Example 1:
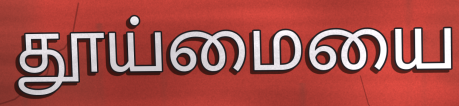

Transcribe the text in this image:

தூய்மையை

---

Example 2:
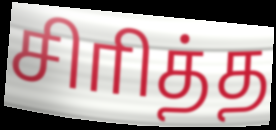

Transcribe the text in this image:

சிரித்த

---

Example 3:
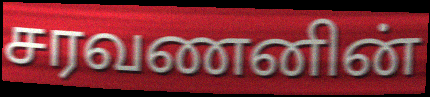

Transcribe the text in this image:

சரவணனின்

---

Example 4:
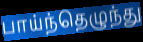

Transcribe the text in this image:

பாய்ந்தெழுந்து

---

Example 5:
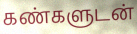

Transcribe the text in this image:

கண்களுடன்